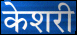
केशरी